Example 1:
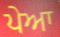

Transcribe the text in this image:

ਪੇਆ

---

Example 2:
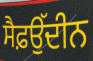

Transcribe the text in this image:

ਸੈਫ਼ਉੱਦੀਨ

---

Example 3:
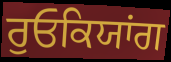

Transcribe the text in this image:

ਰੁਓਕਿਯਾਂਗ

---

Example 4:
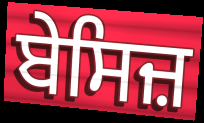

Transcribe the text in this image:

ਬੇਸਿਜ਼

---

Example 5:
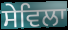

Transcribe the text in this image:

ਸੇਵਿਲਾ